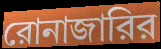
রোনাজারির